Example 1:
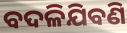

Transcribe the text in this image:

ବଦଳିଯିବଣି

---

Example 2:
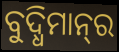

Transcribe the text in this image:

ବୁଦ୍ଧିମାନ୍‍ର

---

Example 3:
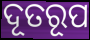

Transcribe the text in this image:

ଦୂତରୂପ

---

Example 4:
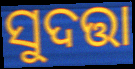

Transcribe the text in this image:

ସୁଦତ୍ତା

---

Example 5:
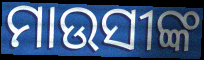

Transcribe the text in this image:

ମାଉସୀଙ୍କ